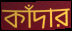
কাঁদার